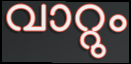
വാറ്റും